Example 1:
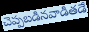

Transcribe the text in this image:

చెప్పబడినవాడితడే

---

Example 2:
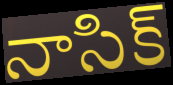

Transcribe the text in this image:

నాసిక్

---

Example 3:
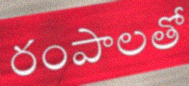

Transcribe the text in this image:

రంపాలతో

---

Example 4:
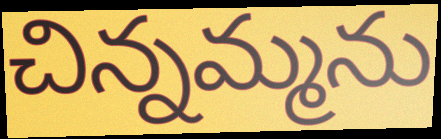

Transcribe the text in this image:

చిన్నమ్మను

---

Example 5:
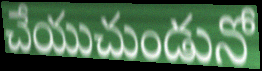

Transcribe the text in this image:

చేయుచుండునో